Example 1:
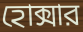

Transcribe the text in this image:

হোক্সার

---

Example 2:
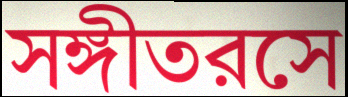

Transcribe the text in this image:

সঙ্গীতরসে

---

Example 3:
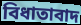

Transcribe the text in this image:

বিধাতাবাদ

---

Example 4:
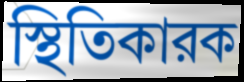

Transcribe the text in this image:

স্থিতিকারক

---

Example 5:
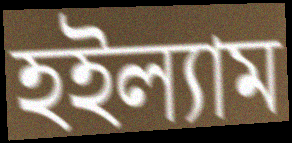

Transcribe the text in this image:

হইল্যাম